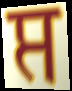
प्त